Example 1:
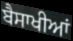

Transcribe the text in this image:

ਬੈਸਾਖੀਆਂ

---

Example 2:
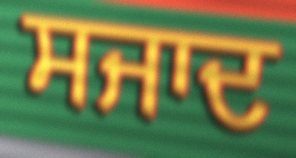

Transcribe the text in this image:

ਸਜਾਦ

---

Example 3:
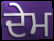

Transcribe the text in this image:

ਦੇਮ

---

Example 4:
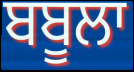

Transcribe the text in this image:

ਬਬੂਲਾ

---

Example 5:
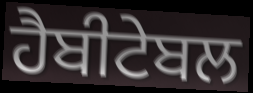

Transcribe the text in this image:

ਹੈਬੀਟੇਬਲ